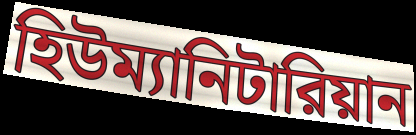
হিউম্যানিটারিয়ান